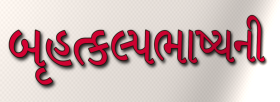
બૃહત્કલ્પભાષ્યની